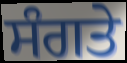
ਸੰਗਤੇ